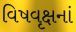
વિષવૃક્ષનાં